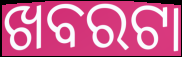
ଖବରଟା